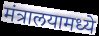
मंत्रालयामध्ये